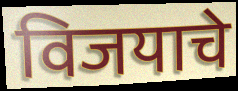
विजयाचे